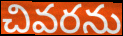
చివరను